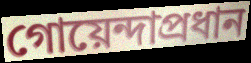
গোয়েন্দাপ্রধান